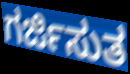
ಗರ್ಜಿಸುತ